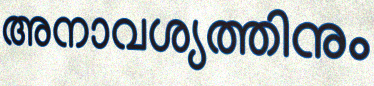
അനാവശ്യത്തിനും